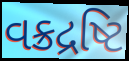
વક્રદ્રષ્ટિ